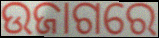
ଉଜାଗରେ